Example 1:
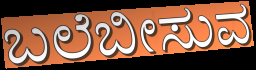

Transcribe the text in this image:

ಬಲೆಬೀಸುವ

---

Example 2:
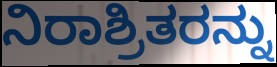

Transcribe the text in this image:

ನಿರಾಶ್ರಿತರನ್ನು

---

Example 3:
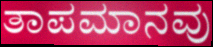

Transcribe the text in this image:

ತಾಪಮಾನವು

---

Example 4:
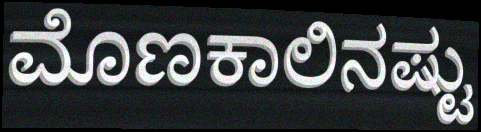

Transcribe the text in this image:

ಮೊಣಕಾಲಿನಷ್ಟು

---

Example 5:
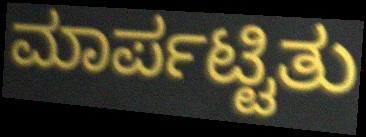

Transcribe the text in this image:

ಮಾರ್ಪಟ್ಟಿತು